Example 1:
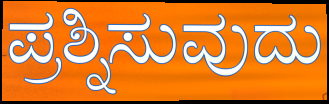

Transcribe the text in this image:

ಪ್ರಶ್ನಿಸುವುದು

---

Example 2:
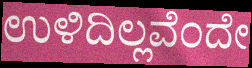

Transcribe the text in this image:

ಉಳಿದಿಲ್ಲವೆಂದೇ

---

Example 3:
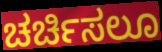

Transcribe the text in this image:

ಚರ್ಚಿಸಲೂ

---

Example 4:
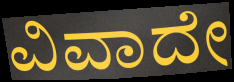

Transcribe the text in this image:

ವಿವಾದೇ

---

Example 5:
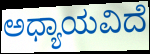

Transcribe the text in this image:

ಅಧ್ಯಾಯವಿದೆ